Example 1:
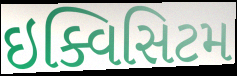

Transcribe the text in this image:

ઇક્વિસિટમ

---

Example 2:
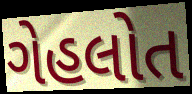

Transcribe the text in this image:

ગેહલોત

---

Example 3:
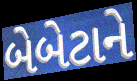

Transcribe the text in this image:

બેબેટાને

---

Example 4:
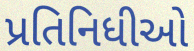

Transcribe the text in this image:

પ્રતિનિધીઓ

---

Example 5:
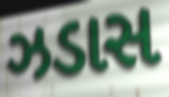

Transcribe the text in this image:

ઝડાસ